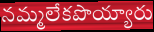
నమ్మలేకపొయ్యారు